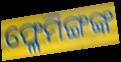
ଫ୍ଳେମିଙ୍ଗଙ୍କ